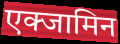
एक्जामिन